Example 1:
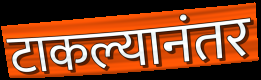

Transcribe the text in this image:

टाकल्यानंतर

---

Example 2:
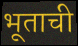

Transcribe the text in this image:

भूताची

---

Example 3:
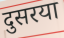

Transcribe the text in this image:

दुसरया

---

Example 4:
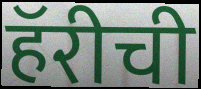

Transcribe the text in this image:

हॅरीची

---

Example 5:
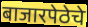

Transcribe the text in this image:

बाजारपेठेचे